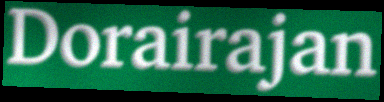
Dorairajan